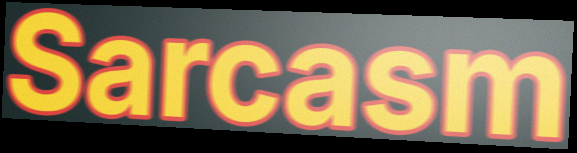
Sarcasm